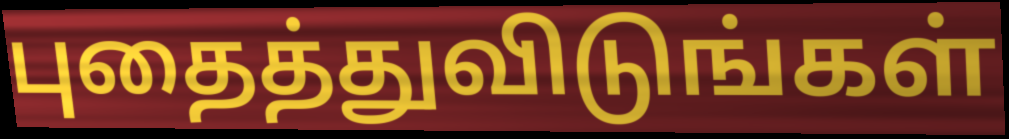
புதைத்துவிடுங்கள்